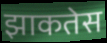
झाकतेस